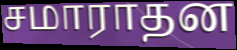
சமாராதன